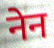
नेन